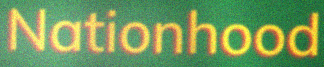
Nationhood